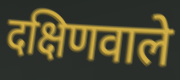
दक्षिणवाले